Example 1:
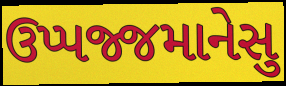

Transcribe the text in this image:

ઉપ્પજ્જમાનેસુ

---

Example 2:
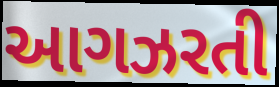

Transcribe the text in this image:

આગઝરતી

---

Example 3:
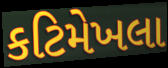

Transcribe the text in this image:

કટિમેખલા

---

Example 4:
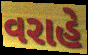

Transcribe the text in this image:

વરાહે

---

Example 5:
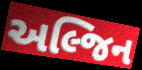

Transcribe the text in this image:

અલ્જિન